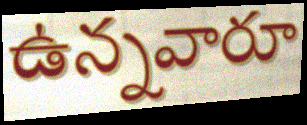
ఉన్నవారూ